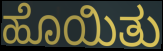
ಹೊಯಿತು